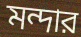
মন্দার